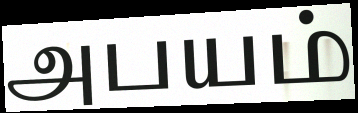
அபயம்